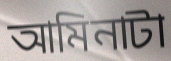
আমিনাটা